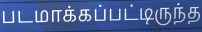
படமாக்கப்பட்டிருந்த